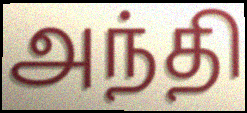
அந்தி